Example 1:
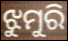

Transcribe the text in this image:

ଝୁମୁରି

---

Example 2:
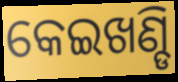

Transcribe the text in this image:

କେଇଖଣ୍ଡି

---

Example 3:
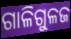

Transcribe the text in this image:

ଗାଳିଗୁଳଜ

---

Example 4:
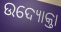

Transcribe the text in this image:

ଉଦ୍ୟୋକ୍ତା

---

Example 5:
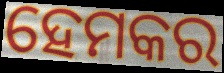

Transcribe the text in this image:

ହେମକର